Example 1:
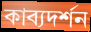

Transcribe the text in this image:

কাব্যদর্শন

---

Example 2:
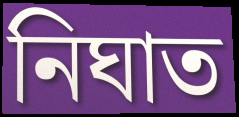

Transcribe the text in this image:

নিঘাত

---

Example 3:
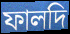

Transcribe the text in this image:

ফালদি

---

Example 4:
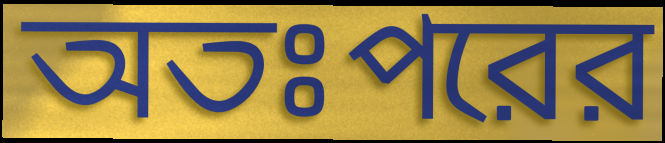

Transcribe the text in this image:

অতঃপরের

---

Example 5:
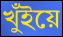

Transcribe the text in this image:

খুঁইয়ে